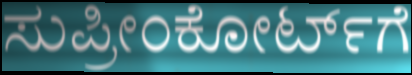
ಸುಪ್ರೀಂಕೋರ್ಟ್‌ಗೆ